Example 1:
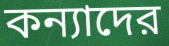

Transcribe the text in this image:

কন্যাদের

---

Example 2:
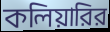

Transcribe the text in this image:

কলিয়ারির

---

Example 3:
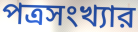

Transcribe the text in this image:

পত্রসংখ্যার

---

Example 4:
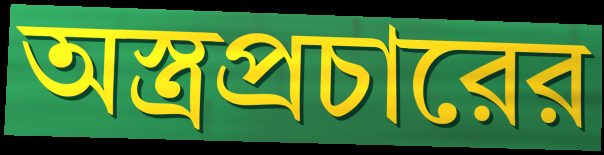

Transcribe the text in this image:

অস্ত্রপ্রচারের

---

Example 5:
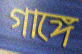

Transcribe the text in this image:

গাঙ্গে